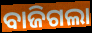
ବାଜିଗଲା